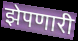
झेपणारी